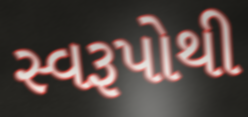
સ્વરૂપોથી